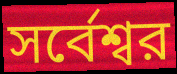
সর্বেশ্বর